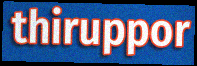
thiruppor